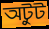
অটুট